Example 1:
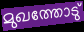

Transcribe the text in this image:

മുഖത്തോടു്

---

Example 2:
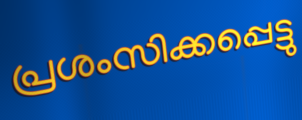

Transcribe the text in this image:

പ്രശംസിക്കപ്പെട്ടു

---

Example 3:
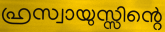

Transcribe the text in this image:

ഹ്രസ്വായുസ്സിന്റെ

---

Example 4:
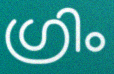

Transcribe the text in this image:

ഗ്രിം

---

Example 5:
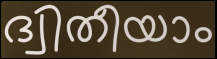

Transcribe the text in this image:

ദ്വിതീയാം